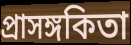
প্রাসঙ্গকিতা